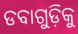
ଡବାଗୁଡ଼ିକୁ